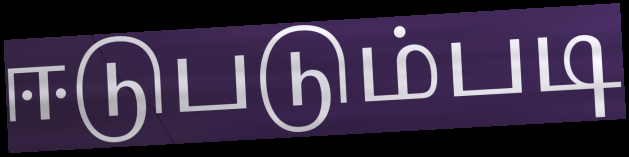
ஈடுபடும்படி